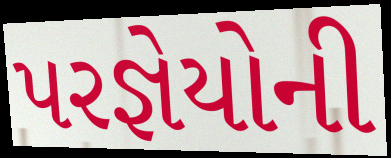
પરજ્ઞેયોની